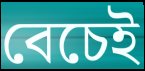
বেচেই